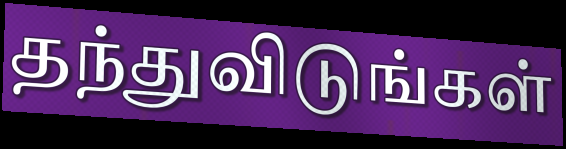
தந்துவிடுங்கள்